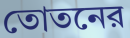
তোতনের